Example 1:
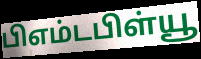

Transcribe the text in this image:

பிஎம்டபிள்யூ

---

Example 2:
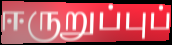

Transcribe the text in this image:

ஈருறுப்புப்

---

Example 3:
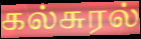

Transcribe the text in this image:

கல்சுரல்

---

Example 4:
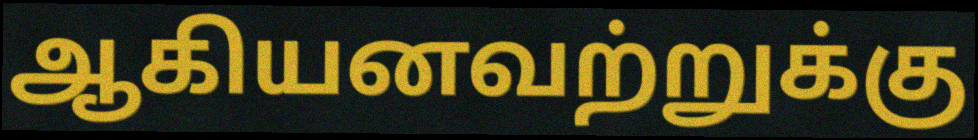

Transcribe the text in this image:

ஆகியனவற்றுக்கு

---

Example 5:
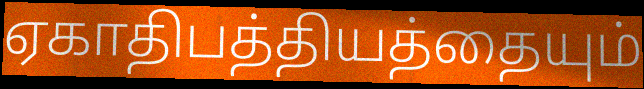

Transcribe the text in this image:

ஏகாதிபத்தியத்தையும்